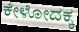
ಕೇಳೋದಕ್ಕ